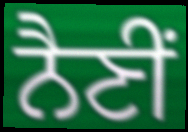
ਨੈਣੀਂ